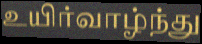
உயிர்வாழ்ந்து